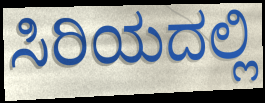
ಸಿರಿಯದಲ್ಲಿ